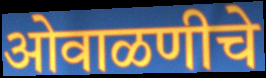
ओवाळणीचे